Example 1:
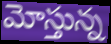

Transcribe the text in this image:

మోస్తున్న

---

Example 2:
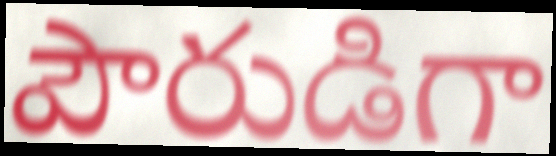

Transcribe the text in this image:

పౌరుడిగా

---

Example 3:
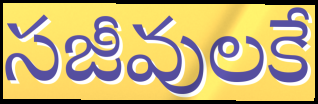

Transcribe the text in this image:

సజీవులకే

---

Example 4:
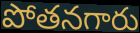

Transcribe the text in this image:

పోతనగారు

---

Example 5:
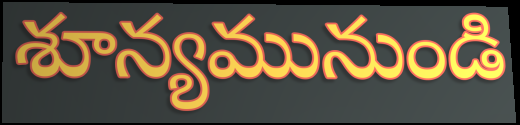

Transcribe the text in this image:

శూన్యమునుండి